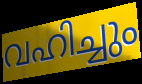
വഹിച്ചും